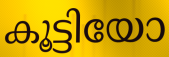
കൂട്ടിയോ